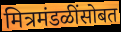
मित्रमंडळींसोबत